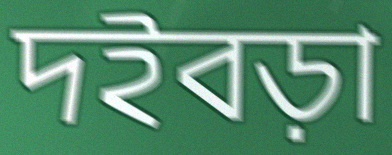
দইবড়া